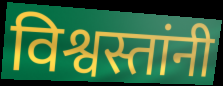
विश्वस्तांनी